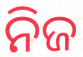
ନିଜ